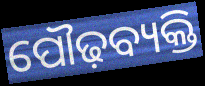
ପୌଢ଼ବ୍ୟକ୍ତି